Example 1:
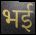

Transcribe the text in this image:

भई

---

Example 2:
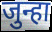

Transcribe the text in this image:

जुन्हा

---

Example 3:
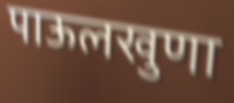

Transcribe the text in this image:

पाऊलखुणा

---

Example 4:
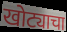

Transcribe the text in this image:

खोट्याचा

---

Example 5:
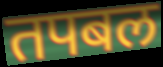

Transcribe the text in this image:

तपबल